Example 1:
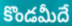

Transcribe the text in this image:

కొండమీదే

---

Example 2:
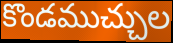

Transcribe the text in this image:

కొండముచ్చుల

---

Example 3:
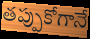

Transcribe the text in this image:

తప్పుకోగానే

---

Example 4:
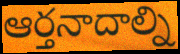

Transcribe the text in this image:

ఆర్తనాదాల్ని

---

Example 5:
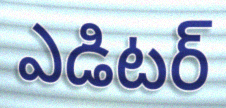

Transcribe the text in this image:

ఎడిటర్